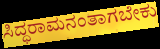
ಸಿದ್ಧರಾಮನಂತಾಗಬೇಕು